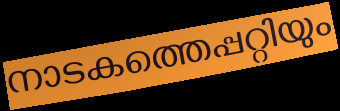
നാടകത്തെപ്പറ്റിയും